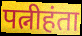
पत्नीहंता